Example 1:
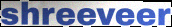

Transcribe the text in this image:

shreeveer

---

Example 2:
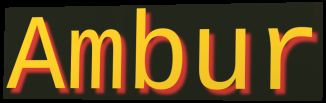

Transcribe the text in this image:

Ambur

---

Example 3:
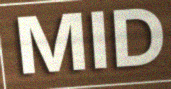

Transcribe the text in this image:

MID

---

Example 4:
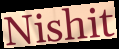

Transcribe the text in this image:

Nishit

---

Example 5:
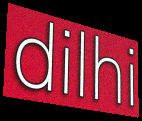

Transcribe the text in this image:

dilhi